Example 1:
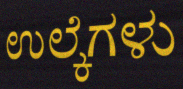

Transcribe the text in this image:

ಉಲ್ಕೆಗಳು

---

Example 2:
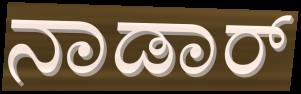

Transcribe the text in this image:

ನಾಡಾರ್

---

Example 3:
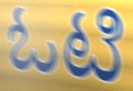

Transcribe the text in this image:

ಓಟಿ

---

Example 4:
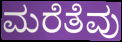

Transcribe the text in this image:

ಮರೆತೆವು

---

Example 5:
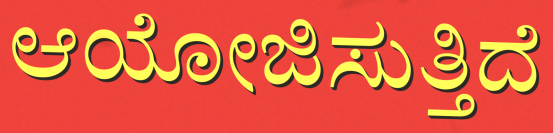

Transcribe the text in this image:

ಆಯೋಜಿಸುತ್ತಿದೆ